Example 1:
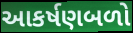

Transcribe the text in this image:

આકર્ષણબળો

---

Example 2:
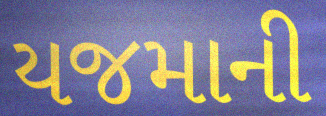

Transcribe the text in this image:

યજમાની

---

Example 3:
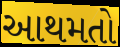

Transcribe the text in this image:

આથમતો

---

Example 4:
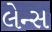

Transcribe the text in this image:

લેન્સ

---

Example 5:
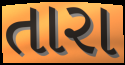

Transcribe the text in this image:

તારા